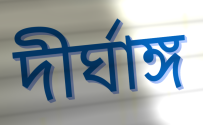
দীর্ঘাঙ্গ